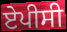
ਏਪੀਸੀ